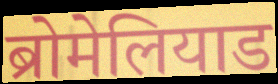
ब्रोमेलियाड